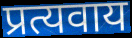
प्रत्यवाय